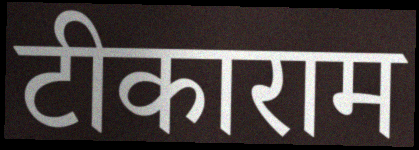
टीकाराम